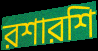
রশারশি